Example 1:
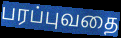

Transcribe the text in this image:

பரப்புவதை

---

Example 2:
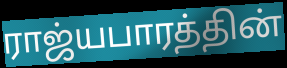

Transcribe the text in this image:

ராஜ்யபாரத்தின்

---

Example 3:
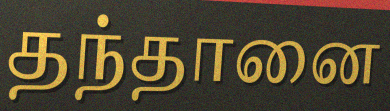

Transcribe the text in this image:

தந்தானை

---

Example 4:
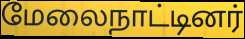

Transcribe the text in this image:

மேலைநாட்டினர்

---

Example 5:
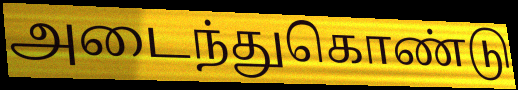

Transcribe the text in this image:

அடைந்துகொண்டு